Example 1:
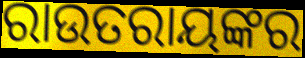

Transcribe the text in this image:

ରାଉତରାୟଙ୍କର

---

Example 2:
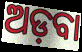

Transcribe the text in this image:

ଅଡ଼ବା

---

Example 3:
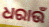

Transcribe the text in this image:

ଧରାଉଁ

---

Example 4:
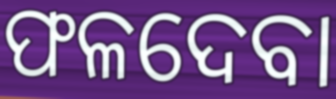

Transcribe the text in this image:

ଫଳଦେବା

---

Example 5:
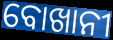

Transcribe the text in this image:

ବୋଖାନୀ